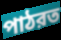
পাঠরত